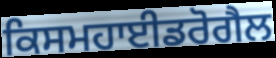
ਕਿਸਮਹਾਈਡਰੋਗੈਲ